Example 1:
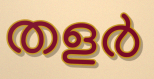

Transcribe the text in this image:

തളർ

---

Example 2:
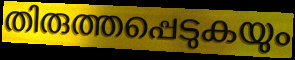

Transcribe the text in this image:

തിരുത്തപ്പെടുകയും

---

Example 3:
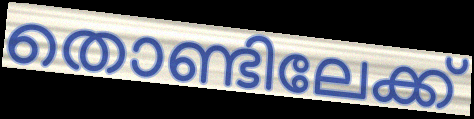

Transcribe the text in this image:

തൊണ്ടിലേക്ക്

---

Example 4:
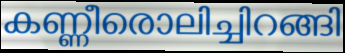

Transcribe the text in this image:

കണ്ണീരൊലിച്ചിറങ്ങി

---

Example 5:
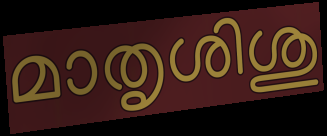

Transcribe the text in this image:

മാതൃശിശു